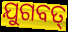
ଯୁଗବତ୍